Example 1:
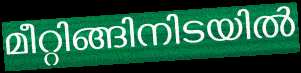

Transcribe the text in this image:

മീറ്റിങ്ങിനിടയിൽ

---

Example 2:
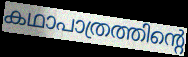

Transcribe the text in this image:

കഥാപാത്രത്തിന്റെ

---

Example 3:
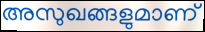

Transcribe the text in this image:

അസുഖങ്ങളുമാണ്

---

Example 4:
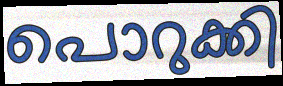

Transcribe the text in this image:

പൊറുക്കി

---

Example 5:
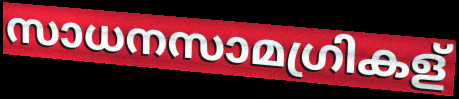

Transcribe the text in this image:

സാധനസാമഗ്രികള്